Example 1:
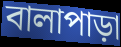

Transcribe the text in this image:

বালাপাড়া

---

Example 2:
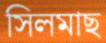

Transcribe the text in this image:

সিলমাছ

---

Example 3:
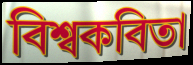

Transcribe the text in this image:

বিশ্বকবিতা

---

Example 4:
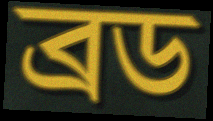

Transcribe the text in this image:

ব্রড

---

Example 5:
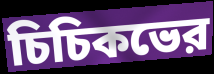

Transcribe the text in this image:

চিচিকভের